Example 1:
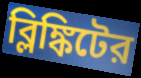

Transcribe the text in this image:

ব্লিঙ্কিটের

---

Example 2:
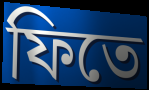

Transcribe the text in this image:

ফিতে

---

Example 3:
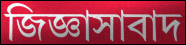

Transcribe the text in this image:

জিজ্ঞাসাবাদ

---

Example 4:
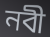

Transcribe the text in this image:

নবী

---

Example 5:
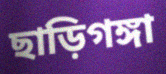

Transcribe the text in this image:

ছাড়িগঙ্গা